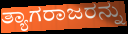
ತ್ಯಾಗರಾಜರನ್ನು